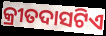
କ୍ରୀତଦାସଟିଏ